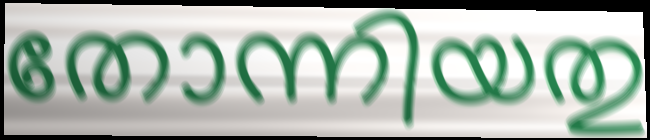
തോന്നിയതു